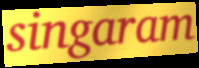
singaram